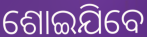
ଶୋଇଯିବେ